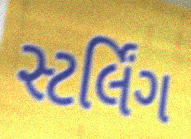
સ્ટર્લિંગ